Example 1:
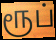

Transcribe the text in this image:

ரூப்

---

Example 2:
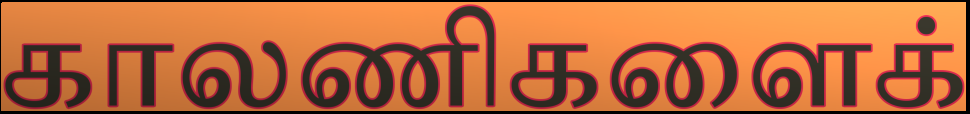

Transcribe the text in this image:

காலணிகளைக்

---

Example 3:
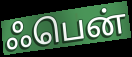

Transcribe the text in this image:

ஃபென்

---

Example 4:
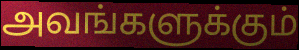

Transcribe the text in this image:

அவங்களுக்கும்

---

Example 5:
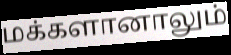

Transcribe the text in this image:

மக்களானாலும்